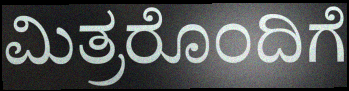
ಮಿತ್ರರೊಂದಿಗೆ